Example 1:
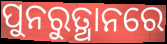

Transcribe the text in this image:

ପୁନରୁତ୍ଥାନରେ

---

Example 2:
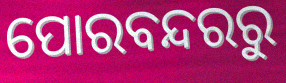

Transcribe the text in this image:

ପୋରବନ୍ଦରରୁ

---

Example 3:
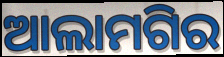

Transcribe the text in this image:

ଆଲାମଗିର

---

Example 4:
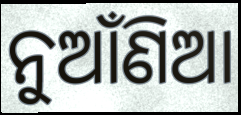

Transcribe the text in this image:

ନୁଆଁଣିଆ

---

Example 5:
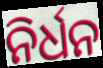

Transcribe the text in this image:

ନିର୍ଧନ